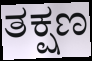
ತಕ್ಷಣ